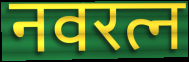
नवरत्न